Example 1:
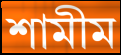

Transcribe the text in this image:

শামীম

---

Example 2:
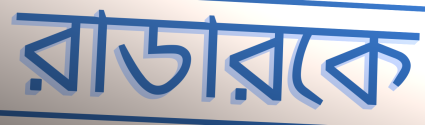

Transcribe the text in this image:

রাডারকে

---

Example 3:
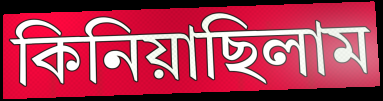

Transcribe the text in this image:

কিনিয়াছিলাম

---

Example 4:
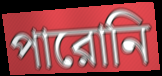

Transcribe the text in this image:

পারোনি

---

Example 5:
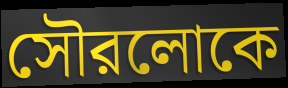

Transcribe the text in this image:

সৌরলোকে